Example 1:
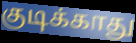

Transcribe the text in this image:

குடிக்காது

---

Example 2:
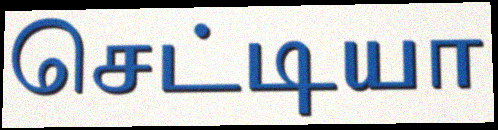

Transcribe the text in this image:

செட்டியா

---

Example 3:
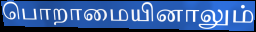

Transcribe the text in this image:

பொறாமையினாலும்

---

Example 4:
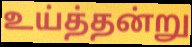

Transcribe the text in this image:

உய்த்தன்று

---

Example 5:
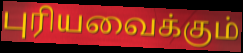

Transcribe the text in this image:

புரியவைக்கும்